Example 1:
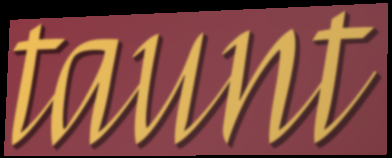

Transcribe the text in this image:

taunt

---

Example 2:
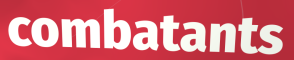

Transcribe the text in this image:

combatants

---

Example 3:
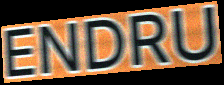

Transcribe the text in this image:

ENDRU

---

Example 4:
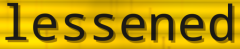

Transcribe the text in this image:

lessened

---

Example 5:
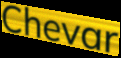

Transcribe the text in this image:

Chevar